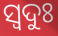
ସ୍ବଦୁଃ